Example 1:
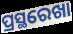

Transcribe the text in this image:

ପ୍ରସ୍ଥରେଖା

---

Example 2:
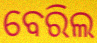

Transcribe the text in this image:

ବେରିଲ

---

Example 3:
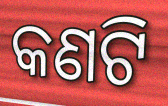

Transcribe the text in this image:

କଣଟି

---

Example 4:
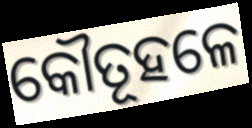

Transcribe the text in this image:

କୌତୂହଳେ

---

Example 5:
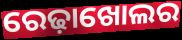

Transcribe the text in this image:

ରେଢ଼ାଖୋଲର